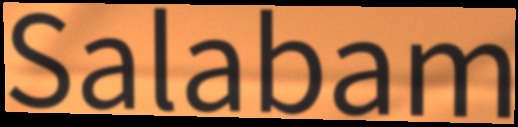
Salabam